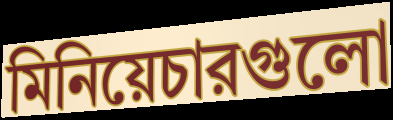
মিনিয়েচারগুলো